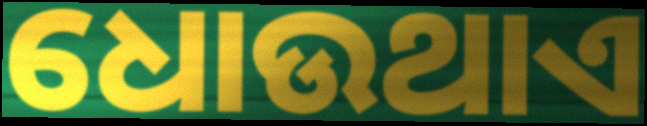
ଧୋଉଥାଏ